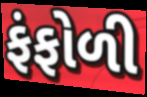
ફંફોળી